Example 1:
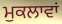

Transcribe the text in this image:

ਮੁਕਲਾਵਾਂ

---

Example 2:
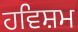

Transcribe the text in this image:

ਹਵਿਸ਼ਮ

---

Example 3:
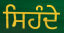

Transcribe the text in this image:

ਸਿਹੰਦੇ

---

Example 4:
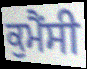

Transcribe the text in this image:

ਕੁਮੈਂਸੀ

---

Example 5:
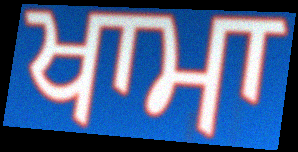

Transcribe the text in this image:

ਖਾਮਾ